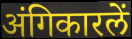
अंगिकारलें